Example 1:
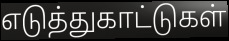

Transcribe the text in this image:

எடுத்துகாட்டுகள்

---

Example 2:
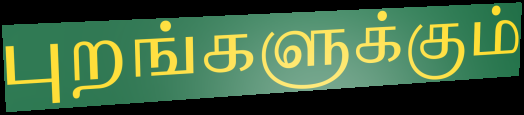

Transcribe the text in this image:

புறங்களுக்கும்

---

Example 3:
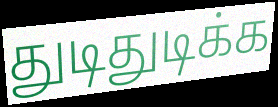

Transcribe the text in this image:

துடிதுடிக்க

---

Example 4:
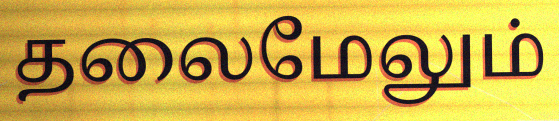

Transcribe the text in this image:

தலைமேலும்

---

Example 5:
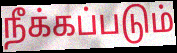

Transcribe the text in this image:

நீக்கப்படும்